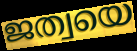
ജത്വയെ